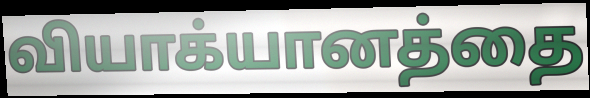
வியாக்யானத்தை